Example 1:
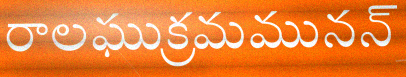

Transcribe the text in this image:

రాలఘుక్రమమునన్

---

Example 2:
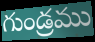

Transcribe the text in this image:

గుండ్రము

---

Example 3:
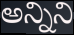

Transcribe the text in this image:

అన్నిని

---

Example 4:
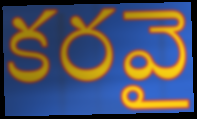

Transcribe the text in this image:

కరవై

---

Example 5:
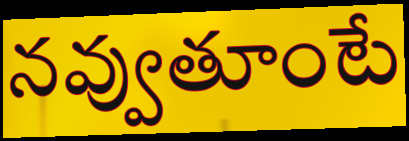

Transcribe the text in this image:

నవ్వుతూంటే